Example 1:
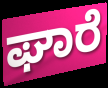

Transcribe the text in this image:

ಘಾರೆ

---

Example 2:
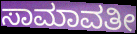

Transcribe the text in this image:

ಸಾಮಾವತೀ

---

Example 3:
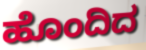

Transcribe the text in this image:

ಹೊಂದಿದ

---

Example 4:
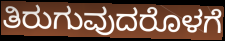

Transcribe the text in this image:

ತಿರುಗುವುದರೊಳಗೆ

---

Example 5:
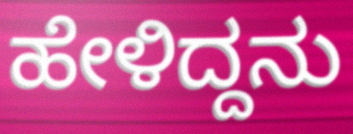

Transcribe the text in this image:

ಹೇಳಿದ್ದನು